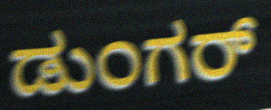
ಡುಂಗರ್